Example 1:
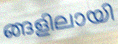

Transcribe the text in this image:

ങ്ങളിലായി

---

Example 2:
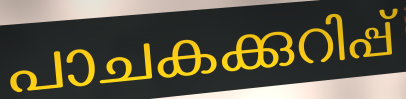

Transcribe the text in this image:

പാചകക്കുറിപ്പ്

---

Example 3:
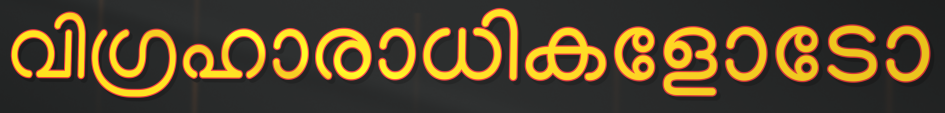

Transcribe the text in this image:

വിഗ്രഹാരാധികളോടോ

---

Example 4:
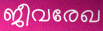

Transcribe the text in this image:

ജീവരേഖ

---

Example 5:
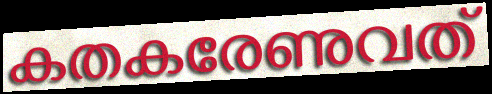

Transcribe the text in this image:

കതകരേണുവത്